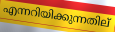
എന്നറിയിക്കുന്നതില്